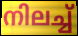
നിലച്ച്